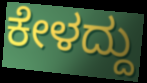
ಕೇಳದ್ದು